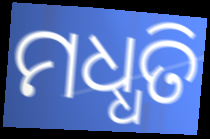
ମଧ୍ଧତି